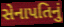
સેનાપતિનું